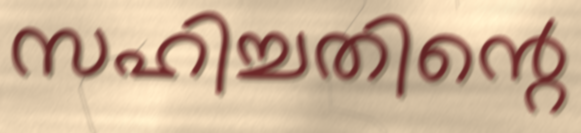
സഹിച്ചതിന്റെ